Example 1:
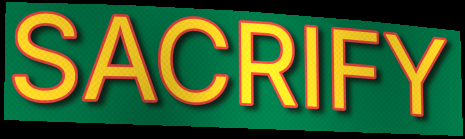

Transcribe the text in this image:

SACRIFY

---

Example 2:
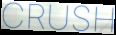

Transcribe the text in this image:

CRUSH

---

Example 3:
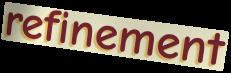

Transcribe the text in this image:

refinement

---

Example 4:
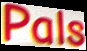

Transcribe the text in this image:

Pals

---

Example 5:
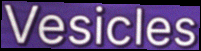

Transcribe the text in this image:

Vesicles